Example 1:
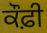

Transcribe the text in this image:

ਕੌਫ਼ੀ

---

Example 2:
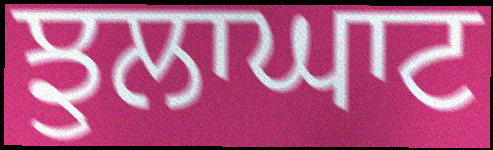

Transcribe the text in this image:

ਝੁਲਾਘਾਟ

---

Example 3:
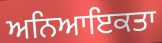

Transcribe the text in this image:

ਅਨਿਆਇਕਤਾ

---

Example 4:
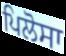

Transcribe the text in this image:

ਪਿਲੋਸਾ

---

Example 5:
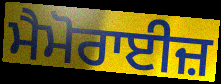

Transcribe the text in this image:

ਮੈਮੋਰਾਈਜ਼